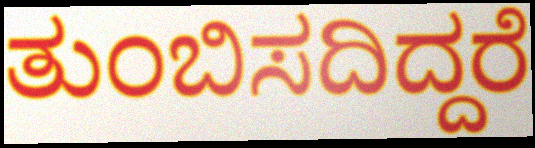
ತುಂಬಿಸದಿದ್ದರೆ